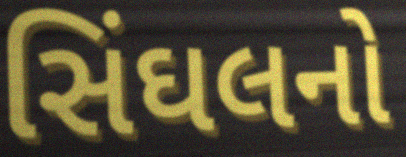
સિંઘલનો